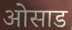
ओसाड